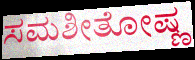
ಸಮಶೀತೋಷ್ಣ